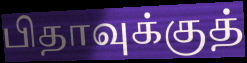
பிதாவுக்குத்